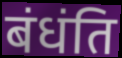
बंधंति